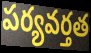
పర్యవర్తత